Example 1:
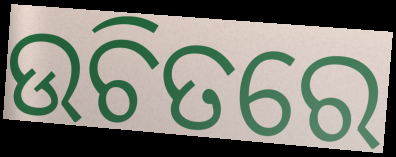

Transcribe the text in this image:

ଉଚିତରେ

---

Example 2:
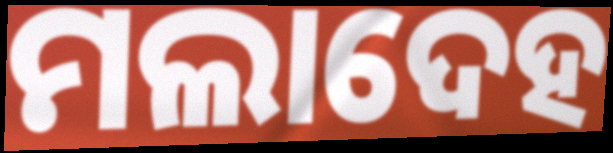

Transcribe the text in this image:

ମଲାଦେହ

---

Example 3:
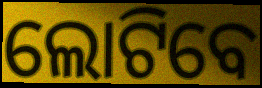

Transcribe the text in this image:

ଲୋଟିବେ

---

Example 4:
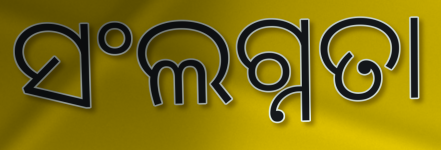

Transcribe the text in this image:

ସଂଲଗ୍ନତା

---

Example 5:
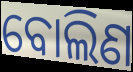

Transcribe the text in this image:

ବୋଲିଣ